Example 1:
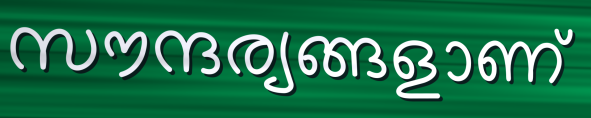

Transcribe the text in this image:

സൗന്ദര്യങ്ങളാണ്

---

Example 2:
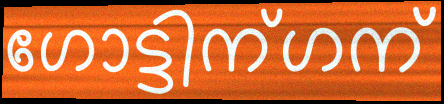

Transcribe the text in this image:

ഗോട്ടിന്ഗന്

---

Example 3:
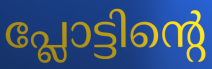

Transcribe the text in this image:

പ്ലോട്ടിന്റെ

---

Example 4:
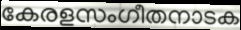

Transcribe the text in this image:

കേരളസംഗീതനാടക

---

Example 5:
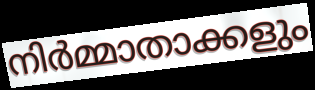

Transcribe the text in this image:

നിർമ്മാതാക്കളും